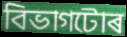
বিভাগটোৰ